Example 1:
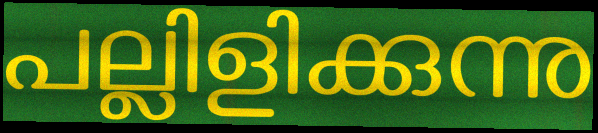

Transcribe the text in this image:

പല്ലിളിക്കുന്നു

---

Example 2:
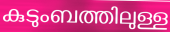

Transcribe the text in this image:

കുടുംബത്തിലുള്ള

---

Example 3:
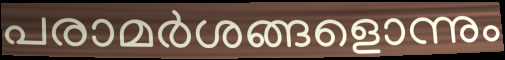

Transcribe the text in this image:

പരാമർശങ്ങളൊന്നും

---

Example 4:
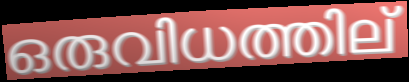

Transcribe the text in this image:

ഒരുവിധത്തില്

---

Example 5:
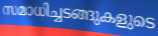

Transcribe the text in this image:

സമാധിച്ചടങ്ങുകളുടെ